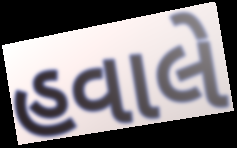
હવાલે